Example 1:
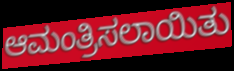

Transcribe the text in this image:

ಆಮಂತ್ರಿಸಲಾಯಿತು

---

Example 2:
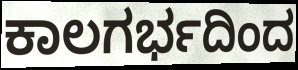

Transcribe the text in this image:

ಕಾಲಗರ್ಭದಿಂದ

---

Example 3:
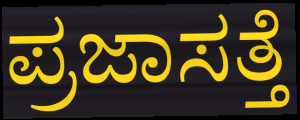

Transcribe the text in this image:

ಪ್ರಜಾಸತ್ತೆ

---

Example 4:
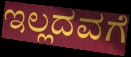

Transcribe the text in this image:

ಇಲ್ಲದವಗೆ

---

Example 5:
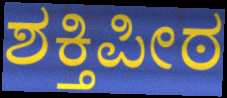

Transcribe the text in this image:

ಶಕ್ತಿಪೀಠ